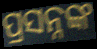
ପ୍ରସନ୍ନଙ୍କ